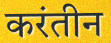
करंतीन